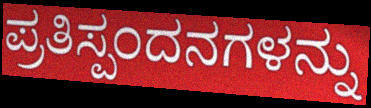
ಪ್ರತಿಸ್ಪಂದನಗಳನ್ನು